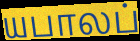
யபாலப்